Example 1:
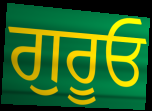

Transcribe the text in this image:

ਗੁਰੂਓ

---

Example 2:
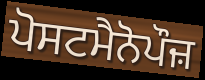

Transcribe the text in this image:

ਪੋਸਟਮੈਨੋਪੌਜ਼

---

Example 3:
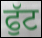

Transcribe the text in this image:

ਫੁੱਟ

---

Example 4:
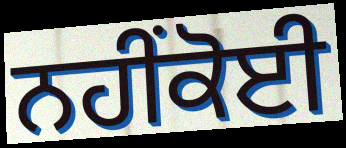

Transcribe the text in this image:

ਨਹੀਂਕੋਈ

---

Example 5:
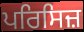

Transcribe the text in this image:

ਪਰਿਸਿਜ਼